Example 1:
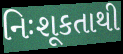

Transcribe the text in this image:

નિઃશૂકતાથી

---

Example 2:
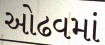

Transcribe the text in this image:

ઓઢવમાં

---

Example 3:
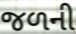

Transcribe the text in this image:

જળની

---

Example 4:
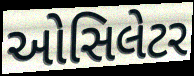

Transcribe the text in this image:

ઓસિલેટર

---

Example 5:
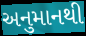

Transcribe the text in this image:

અનુમાનથી